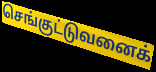
செங்குட்டுவனைக்